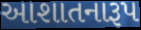
આશાતનારૂપ